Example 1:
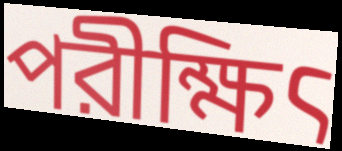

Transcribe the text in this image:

পরীক্ষিৎ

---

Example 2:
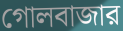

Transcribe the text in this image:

গোলবাজার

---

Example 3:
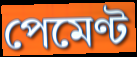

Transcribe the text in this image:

পেমেণ্ট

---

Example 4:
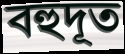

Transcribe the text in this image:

বহুদূত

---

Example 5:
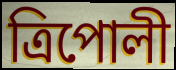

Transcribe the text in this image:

ত্রিপোলী